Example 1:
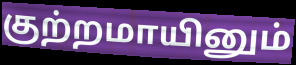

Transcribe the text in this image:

குற்றமாயினும்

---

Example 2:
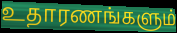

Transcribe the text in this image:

உதாரணங்களும்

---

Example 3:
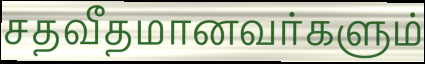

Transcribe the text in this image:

சதவீதமானவர்களும்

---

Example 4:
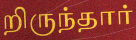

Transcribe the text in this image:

றிருந்தார்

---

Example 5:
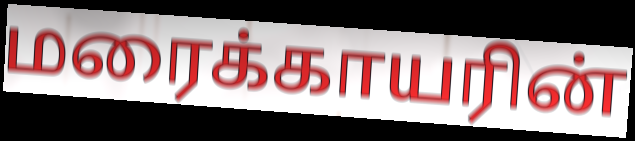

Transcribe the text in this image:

மரைக்காயரின்